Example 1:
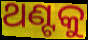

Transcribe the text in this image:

ଥଣ୍ଟକୁ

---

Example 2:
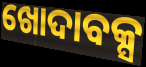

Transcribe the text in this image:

ଖୋଦାବକ୍ସ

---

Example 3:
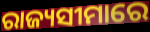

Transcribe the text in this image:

ରାଜ୍ୟସୀମାରେ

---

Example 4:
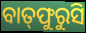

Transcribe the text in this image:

ବାତ୍‌ଫୁରୁସି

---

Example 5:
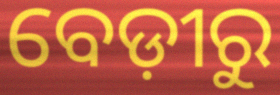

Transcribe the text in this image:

ବେଡ଼ୀରୁ